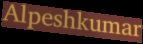
Alpeshkumar